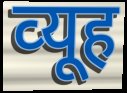
व्‍यूह